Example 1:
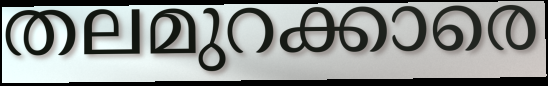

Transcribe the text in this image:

തലമുറക്കാരെ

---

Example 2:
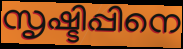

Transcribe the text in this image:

സൃഷ്ടിപ്പിനെ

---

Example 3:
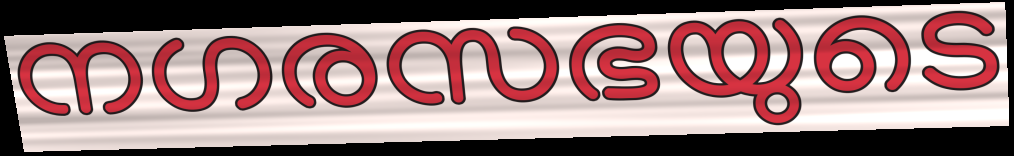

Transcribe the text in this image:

നഗരസഭയുടെ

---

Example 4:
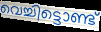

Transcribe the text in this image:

വെച്ചിട്ടൊണ്ട്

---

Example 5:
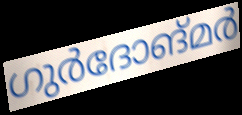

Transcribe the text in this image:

ഗുർദോങ്മർ